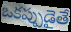
ఒకప్పుడైతే